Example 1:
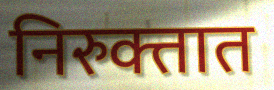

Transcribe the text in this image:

निरुक्तात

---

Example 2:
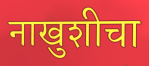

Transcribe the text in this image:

नाखुशीचा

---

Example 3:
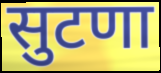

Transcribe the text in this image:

सुटणा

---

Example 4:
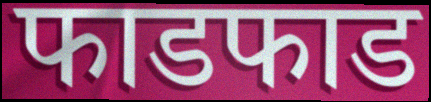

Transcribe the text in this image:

फाडफाड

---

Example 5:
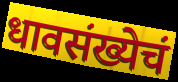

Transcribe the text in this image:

धावसंख्येचं